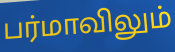
பர்மாவிலும்